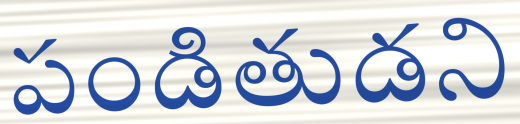
పండితుడని